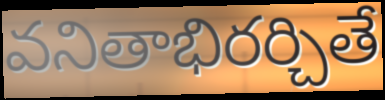
వనితాభిరర్చితే